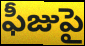
ఫీజుపై